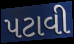
પટાવી